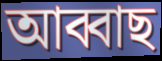
আব্বাছ